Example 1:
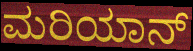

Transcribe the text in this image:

ಮರಿಯಾನ್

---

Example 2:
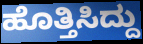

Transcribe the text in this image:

ಹೊತ್ತಿಸಿದ್ದು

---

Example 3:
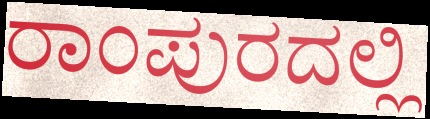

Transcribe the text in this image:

ರಾಂಪುರದಲ್ಲಿ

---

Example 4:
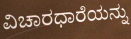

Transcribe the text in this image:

ವಿಚಾರಧಾರೆಯನ್ನು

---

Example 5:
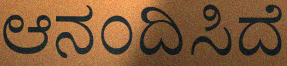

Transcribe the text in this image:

ಆನಂದಿಸಿದೆ